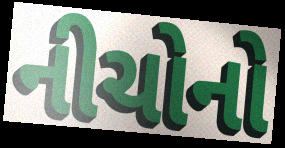
નીચોનો